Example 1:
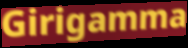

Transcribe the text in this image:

Girigamma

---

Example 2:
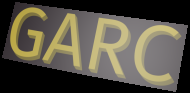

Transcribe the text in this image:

GARC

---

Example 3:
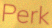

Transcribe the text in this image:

Perk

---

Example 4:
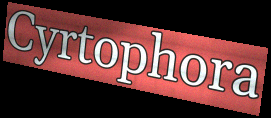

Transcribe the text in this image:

Cyrtophora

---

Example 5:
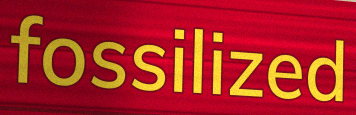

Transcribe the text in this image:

fossilized